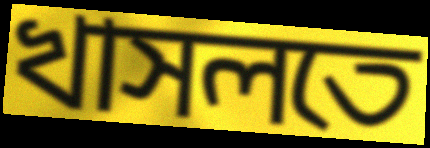
খাসলতে